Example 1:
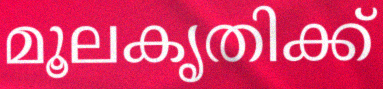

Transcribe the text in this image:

മൂലകൃതിക്ക്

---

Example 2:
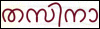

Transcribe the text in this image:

തസിനാ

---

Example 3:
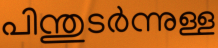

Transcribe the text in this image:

പിന്തുടർന്നുള്ള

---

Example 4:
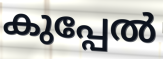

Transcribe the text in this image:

കുപ്പേൽ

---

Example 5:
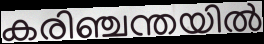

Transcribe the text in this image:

കരിഞ്ചന്തയിൽ